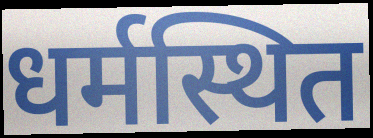
धर्मस्थित